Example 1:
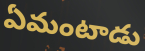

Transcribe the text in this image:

ఏమంటాడు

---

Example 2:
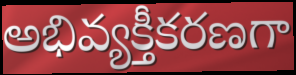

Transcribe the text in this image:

అభివ్యక్తీకరణగా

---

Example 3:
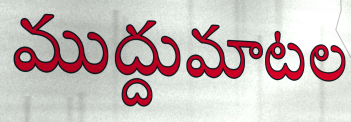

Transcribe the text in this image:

ముద్దుమాటల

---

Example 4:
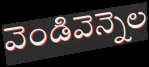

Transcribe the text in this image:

వెండివెన్నెల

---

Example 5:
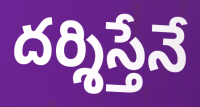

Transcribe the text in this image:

దర్శిస్తేనే